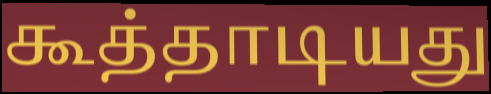
கூத்தாடியது